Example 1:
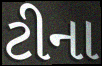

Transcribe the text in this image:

ટીના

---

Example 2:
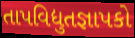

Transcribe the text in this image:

તાપવિદ્યુતજ્ઞાપકો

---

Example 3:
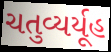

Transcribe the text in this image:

ચતુવ્યર્યૂહ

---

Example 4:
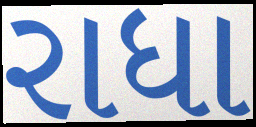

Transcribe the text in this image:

રાધા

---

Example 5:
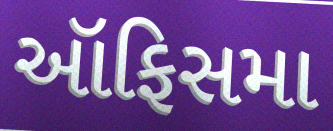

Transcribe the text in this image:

ઑફિસમા